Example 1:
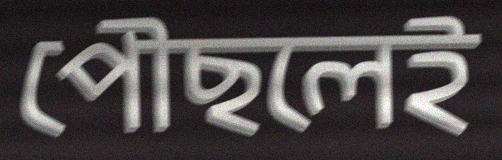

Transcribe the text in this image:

পৌছলেই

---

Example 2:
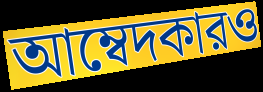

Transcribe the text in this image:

আম্বেদকারও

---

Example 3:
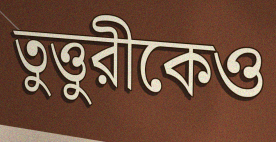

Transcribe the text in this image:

তুত্তুরীকেও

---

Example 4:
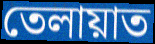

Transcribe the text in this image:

তেলায়াত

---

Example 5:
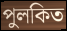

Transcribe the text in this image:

পুলকিত